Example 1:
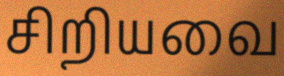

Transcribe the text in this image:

சிறியவை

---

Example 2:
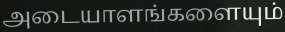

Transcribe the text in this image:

அடையாளங்களையும்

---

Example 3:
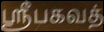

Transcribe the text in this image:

ஸ்ரீபகவத்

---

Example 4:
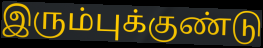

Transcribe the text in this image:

இரும்புக்குண்டு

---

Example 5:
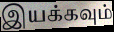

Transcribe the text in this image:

இயக்கவும்